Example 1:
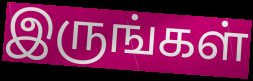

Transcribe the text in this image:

இருங்கள்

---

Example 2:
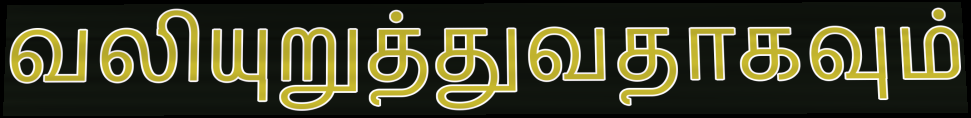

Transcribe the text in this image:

வலியுறுத்துவதாகவும்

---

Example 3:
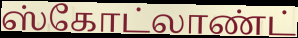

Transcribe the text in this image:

ஸ்கோட்லாண்ட்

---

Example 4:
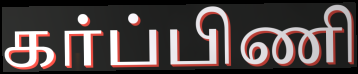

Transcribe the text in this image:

கர்ப்பிணி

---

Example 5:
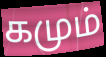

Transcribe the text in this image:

கமும்